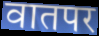
वातपर